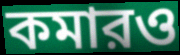
কমারও